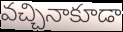
వచ్చినాకూడా